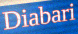
Diabari